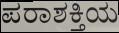
ಪರಾಶಕ್ತಿಯ